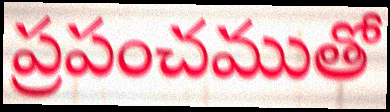
ప్రపంచముతో